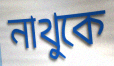
নাথুকে